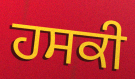
ਹਸਕੀ